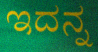
ಇದನ್ನ